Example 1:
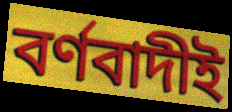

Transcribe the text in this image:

বর্ণবাদীই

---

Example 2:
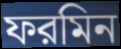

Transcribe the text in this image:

ফরমিন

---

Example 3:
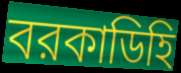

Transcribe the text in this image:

বরকাডিহি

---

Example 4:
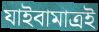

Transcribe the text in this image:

যাইবামাত্রই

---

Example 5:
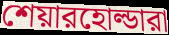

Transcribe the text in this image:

শেয়ারহোল্ডারা